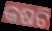
କଷଟି